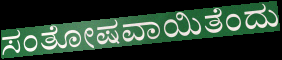
ಸಂತೋಷವಾಯಿತೆಂದು